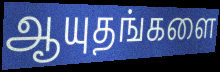
ஆயுதங்களை